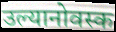
उल्यानोवस्क